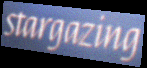
stargazing